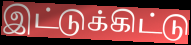
இட்டுக்கிட்டு